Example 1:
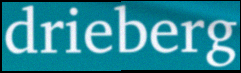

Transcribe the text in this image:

drieberg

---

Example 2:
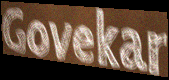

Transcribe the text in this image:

Govekar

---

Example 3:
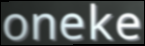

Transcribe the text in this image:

oneke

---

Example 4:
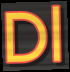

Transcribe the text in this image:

Dl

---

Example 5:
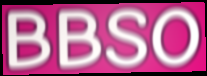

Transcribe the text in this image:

BBSO